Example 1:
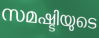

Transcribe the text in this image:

സമഷ്ടിയുടെ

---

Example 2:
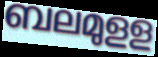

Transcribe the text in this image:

ബലമുളള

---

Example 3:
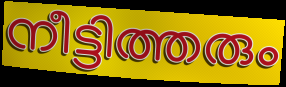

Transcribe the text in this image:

നീട്ടിത്തരും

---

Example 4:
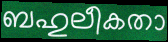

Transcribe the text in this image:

ബഹുലീകതാ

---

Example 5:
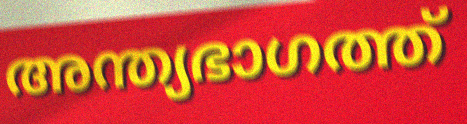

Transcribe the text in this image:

അന്ത്യഭാഗത്ത്